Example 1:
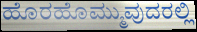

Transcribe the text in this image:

ಹೊರಹೊಮ್ಮುವುದರಲ್ಲಿ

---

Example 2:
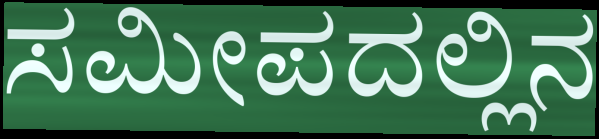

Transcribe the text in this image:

ಸಮೀಪದಲ್ಲಿನ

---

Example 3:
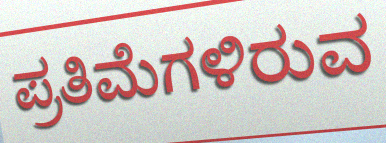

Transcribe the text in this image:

ಪ್ರತಿಮೆಗಳಿರುವ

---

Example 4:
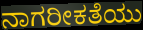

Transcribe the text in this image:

ನಾಗರೀಕತೆಯು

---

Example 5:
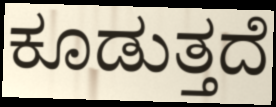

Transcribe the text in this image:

ಕೂಡುತ್ತದೆ